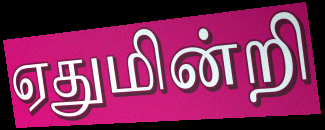
ஏதுமின்றி